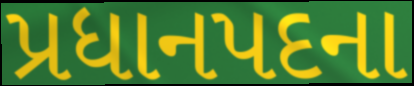
પ્રધાનપદના